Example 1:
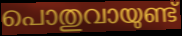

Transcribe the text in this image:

പൊതുവായുണ്ട്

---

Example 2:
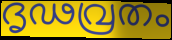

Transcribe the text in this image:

ദൃഢവ്രതം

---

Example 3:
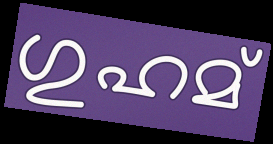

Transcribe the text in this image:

ഗുഹമ്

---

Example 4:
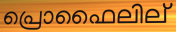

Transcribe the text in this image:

പ്രൊഫൈലില്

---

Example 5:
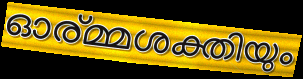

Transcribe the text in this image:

ഓര്മ്മശക്തിയും